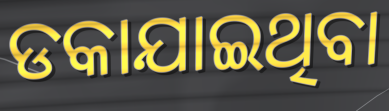
ଡକାଯାଇଥିବା